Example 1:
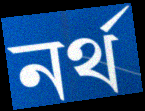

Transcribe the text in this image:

নর্থ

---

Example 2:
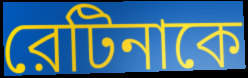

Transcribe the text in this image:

রেটিনাকে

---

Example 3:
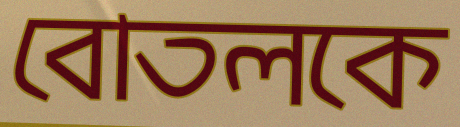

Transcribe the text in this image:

বোতলকে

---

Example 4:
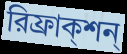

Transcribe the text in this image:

রিফ্রাক্শন্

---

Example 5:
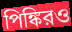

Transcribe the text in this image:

পিঙ্কিরও